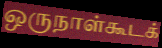
ஒருநாள்கூடக்